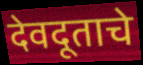
देवदूताचे